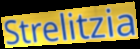
Strelitzia